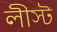
লীস্ট